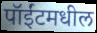
पॉईंटमधील